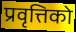
प्रवृत्तिको